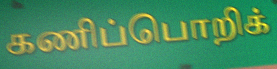
கணிப்பொறிக்